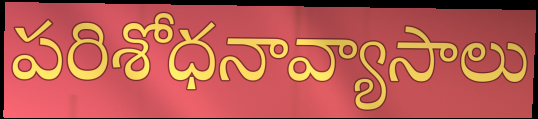
పరిశోధనావ్యాసాలు